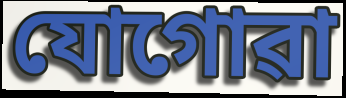
যোগোৱা